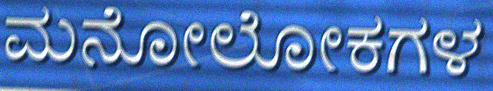
ಮನೋಲೋಕಗಳ